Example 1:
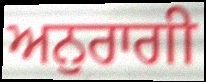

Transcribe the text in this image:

ਅਨੁਰਾਗੀ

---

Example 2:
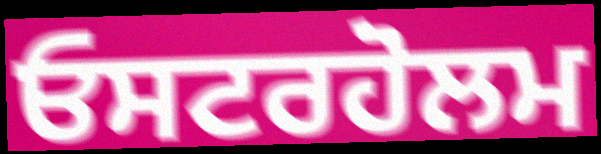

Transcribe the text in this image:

ਓਸਟਰਹੋਲਮ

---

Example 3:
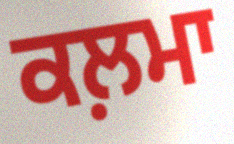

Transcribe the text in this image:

ਕਲ਼ਮਾ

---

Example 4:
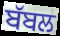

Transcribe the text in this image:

ਬੱਬਲ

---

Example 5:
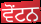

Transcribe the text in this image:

ਵੋਂਟਨ